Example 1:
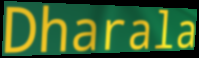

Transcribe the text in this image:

Dharala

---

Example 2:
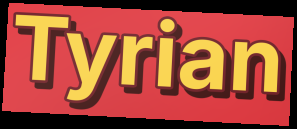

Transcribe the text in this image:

Tyrian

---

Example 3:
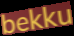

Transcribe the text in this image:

bekku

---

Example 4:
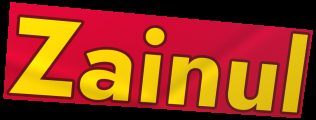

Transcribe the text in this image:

Zainul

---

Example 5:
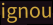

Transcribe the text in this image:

ignou